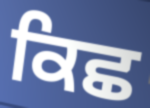
ਕਿਛ